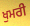
ਖੁਮਰੀ